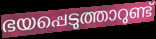
ഭയപ്പെടുത്താറുണ്ട്